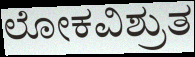
ಲೋಕವಿಶ್ರುತ